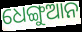
ଧେଙ୍ଗୁଆନ